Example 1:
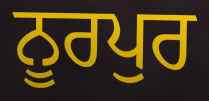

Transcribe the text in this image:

ਨੂਰਪੁਰ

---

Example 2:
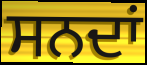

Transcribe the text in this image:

ਸਨਦਾਂ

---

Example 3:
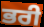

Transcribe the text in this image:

ਭਰੀ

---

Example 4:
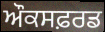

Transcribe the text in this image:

ਔਕਸਫ਼ਰਡ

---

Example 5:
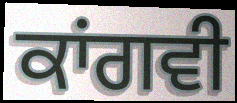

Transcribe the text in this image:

ਕਾਂਗਵੀ